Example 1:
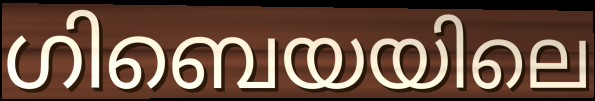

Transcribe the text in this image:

ഗിബെയയിലെ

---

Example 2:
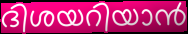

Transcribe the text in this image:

ദിശയറിയാൻ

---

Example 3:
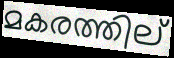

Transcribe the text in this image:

മകരത്തില്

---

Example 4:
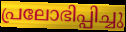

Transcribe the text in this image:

പ്രലോഭിപ്പിച്ചു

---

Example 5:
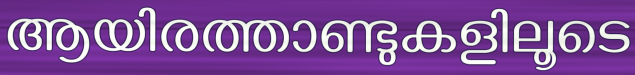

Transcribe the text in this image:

ആയിരത്താണ്ടുകളിലൂടെ